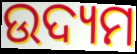
ଉଦ୍ୟମ